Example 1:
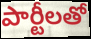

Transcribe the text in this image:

పార్టీలతో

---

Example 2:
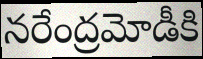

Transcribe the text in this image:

నరేంద్రమోడీకి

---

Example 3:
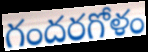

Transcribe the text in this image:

గందరగోళం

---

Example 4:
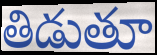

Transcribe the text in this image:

తిడుతూ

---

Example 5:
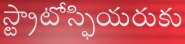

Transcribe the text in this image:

స్ట్రాటోస్ఫియరుకు